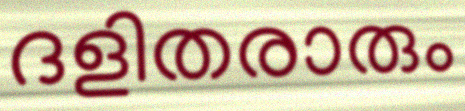
ദളിതരാരും